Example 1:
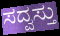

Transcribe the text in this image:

ಸದ್ವಸ್ತು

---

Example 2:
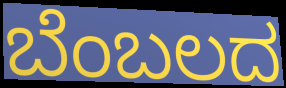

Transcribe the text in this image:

ಬೆಂಬಲದ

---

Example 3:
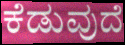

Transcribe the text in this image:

ಕೆಡುವುದೆ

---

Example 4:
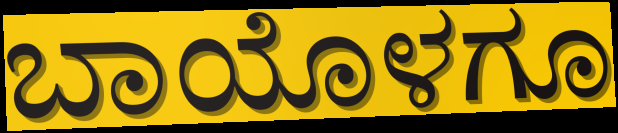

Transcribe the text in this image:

ಬಾಯೊಳಗೂ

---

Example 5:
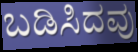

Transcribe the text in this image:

ಬಡಿಸಿದವು